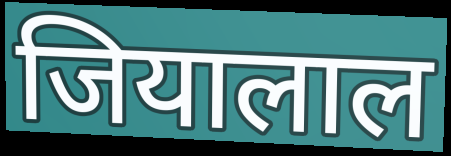
जियालाल